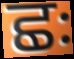
ਛਃ